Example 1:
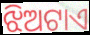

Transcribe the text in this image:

ଝିଅଟାଏ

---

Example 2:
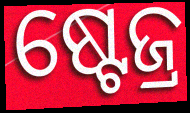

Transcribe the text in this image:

ଷ୍ଟେଜ୍ର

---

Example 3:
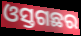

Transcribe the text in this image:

ଓସ୍ତଗଛର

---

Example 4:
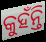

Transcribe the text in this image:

କୁହଁନ୍ତି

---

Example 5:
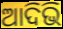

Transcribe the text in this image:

ଆଦିଭି